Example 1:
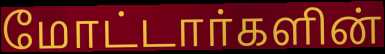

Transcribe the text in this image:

மோட்டார்களின்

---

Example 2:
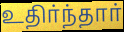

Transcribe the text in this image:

உதிர்ந்தார்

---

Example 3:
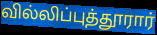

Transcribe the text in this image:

வில்லிப்புத்தூரார்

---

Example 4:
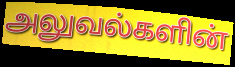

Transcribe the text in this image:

அலுவல்களின்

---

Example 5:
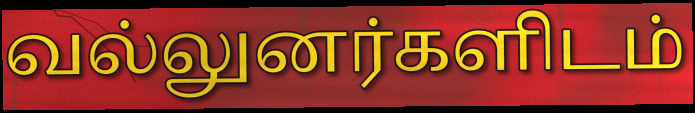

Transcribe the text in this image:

வல்லுனர்களிடம்